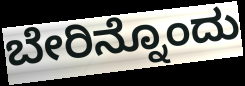
ಬೇರಿನ್ನೊಂದು